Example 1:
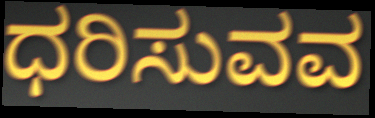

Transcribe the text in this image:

ಧರಿಸುವವ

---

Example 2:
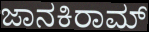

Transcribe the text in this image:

ಜಾನಕಿರಾಮ್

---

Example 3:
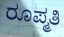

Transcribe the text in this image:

ರೂಪ್ಮತಿ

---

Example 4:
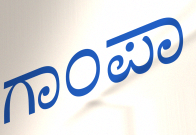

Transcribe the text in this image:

ಗಾಂಪಾ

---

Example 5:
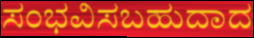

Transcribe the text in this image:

ಸಂಭವಿಸಬಹುದಾದ